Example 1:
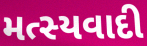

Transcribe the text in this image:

મત્સ્યવાદી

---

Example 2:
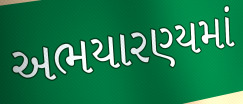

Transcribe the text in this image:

અભયારણ્યમાં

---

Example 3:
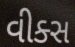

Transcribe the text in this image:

વીક્સ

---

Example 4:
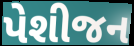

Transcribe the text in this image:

પેશીજન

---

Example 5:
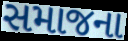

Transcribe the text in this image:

સમાજના